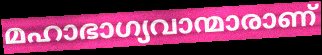
മഹാഭാഗ്യവാന്മാരാണ്